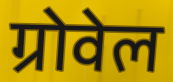
ग्रोवेल